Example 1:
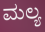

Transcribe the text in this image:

ಮಲ್ಯ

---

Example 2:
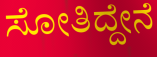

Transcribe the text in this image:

ಸೋತಿದ್ದೇನೆ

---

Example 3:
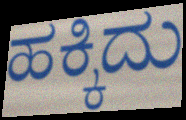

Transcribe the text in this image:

ಹಕ್ಕಿದು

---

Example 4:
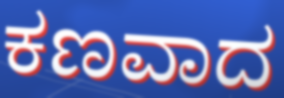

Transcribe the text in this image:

ಕಣವಾದ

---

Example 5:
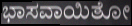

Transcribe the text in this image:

ಭಾಸವಾಯಿತೋ